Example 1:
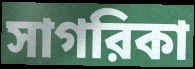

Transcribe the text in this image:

সাগরিকা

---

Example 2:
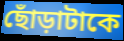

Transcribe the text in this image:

ছোঁড়াটাকে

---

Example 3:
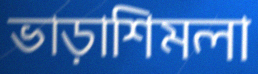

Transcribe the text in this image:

ভাড়াশিমলা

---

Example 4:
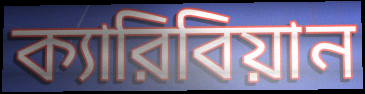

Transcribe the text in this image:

ক্যারিবিয়ান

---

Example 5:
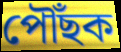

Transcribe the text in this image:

পৌঁছক